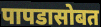
पापडासोबत